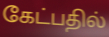
கேட்பதில்